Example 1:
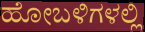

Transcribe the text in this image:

ಹೋಬಳಿಗಳಲ್ಲಿ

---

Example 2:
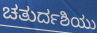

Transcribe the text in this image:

ಚತುರ್ದಶಿಯು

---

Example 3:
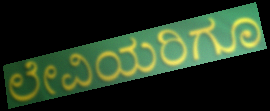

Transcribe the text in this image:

ಲೇವಿಯರಿಗೂ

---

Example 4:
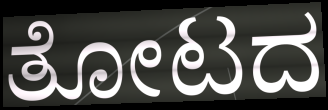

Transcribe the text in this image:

ತೋಟದ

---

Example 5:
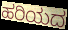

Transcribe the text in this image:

ಹರಿಯದ